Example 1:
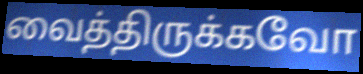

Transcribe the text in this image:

வைத்திருக்கவோ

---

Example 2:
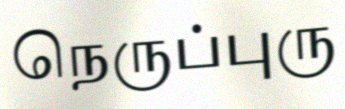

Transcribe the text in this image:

நெருப்புரு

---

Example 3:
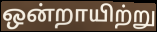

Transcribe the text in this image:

ஒன்றாயிற்று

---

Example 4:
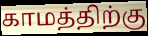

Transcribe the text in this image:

காமத்திற்கு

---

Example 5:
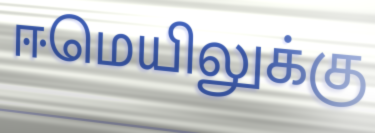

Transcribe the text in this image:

ஈமெயிலுக்கு